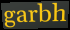
garbh